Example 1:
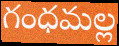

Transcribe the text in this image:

గంధమల్ల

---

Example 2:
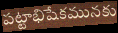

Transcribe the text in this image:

పట్టాభిషేకమునకు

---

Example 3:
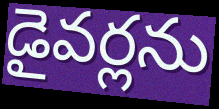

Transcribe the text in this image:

డైవర్లను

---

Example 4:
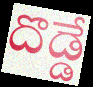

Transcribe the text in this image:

దొడ్డే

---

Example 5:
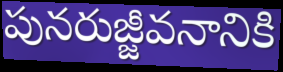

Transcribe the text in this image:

పునరుజ్జీవనానికి